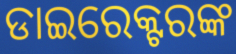
ଡାଇରେକ୍ଟରଙ୍କ